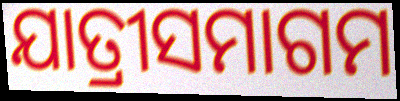
ଯାତ୍ରୀସମାଗମ